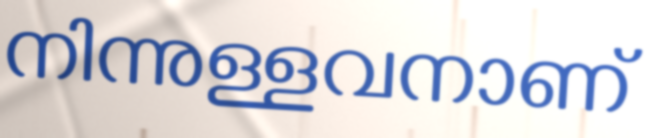
നിന്നുള്ളവനാണ്